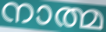
നാത്മ